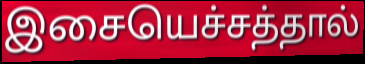
இசையெச்சத்தால்